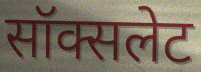
सॉक्सलेट